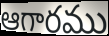
ఆగారము